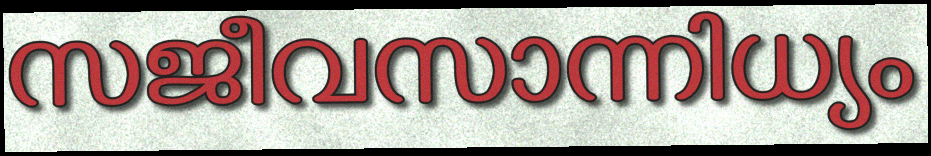
സജീവസാന്നിധ്യം